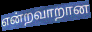
என்றவாறான